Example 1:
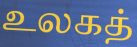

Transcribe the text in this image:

உலகத்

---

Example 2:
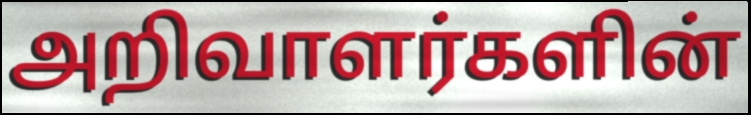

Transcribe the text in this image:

அறிவாளர்களின்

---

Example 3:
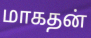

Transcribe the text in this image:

மாகதன்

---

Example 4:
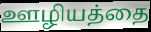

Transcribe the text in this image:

ஊழியத்தை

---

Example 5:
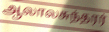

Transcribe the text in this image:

ஆலாலசுந்தரர்